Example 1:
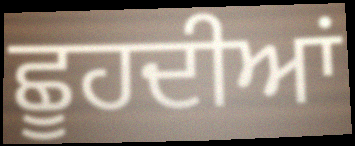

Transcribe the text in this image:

ਛੂਹਦੀਆਂ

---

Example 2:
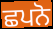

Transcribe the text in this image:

ਛਪਨੋ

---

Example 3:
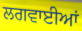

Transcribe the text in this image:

ਲਗਵਾਈਆਂ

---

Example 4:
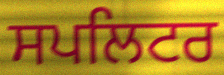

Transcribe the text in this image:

ਸਪਲਿਟਰ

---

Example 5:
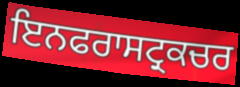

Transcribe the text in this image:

ਇਨਫਰਾਸਟ੍ਰਕਚਰ